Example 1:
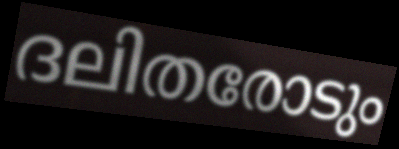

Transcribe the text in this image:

ദലിതരോടും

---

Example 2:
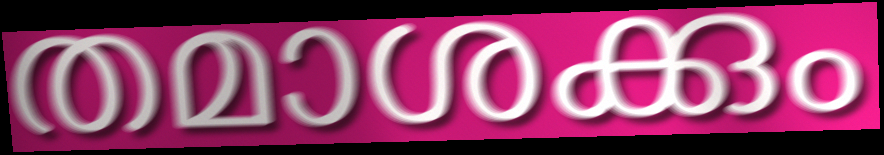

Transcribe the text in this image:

തമാശക്കും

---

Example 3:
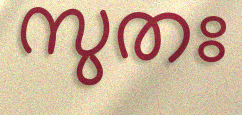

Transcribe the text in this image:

സുതഃ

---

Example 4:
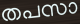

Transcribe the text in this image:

തപസാ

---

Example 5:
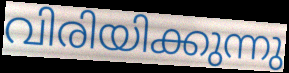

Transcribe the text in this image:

വിരിയിക്കുന്നു